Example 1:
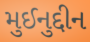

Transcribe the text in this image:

મુઈનુદ્દીન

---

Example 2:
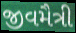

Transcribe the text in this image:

જીવમૈત્રી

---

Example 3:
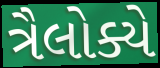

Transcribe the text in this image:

ત્રૈલોક્યે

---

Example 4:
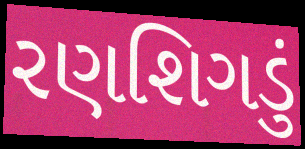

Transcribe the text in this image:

રણશિગડું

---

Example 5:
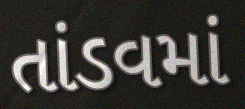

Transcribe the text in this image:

તાંડવમાં